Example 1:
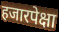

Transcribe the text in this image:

हजारपेक्षा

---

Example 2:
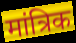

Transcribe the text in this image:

मांत्रिक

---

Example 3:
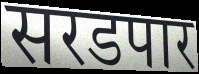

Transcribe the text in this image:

सरडपार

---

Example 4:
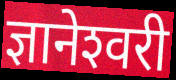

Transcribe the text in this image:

ज्ञानेश्‍वरी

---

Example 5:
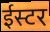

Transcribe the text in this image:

ईस्टर